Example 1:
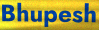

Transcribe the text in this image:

Bhupesh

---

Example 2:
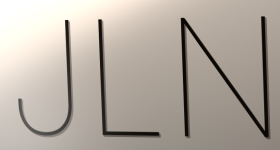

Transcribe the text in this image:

JLN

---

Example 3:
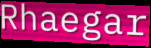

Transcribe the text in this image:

Rhaegar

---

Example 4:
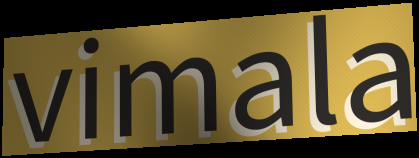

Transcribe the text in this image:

vimala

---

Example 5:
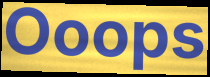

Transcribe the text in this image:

Ooops